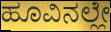
ಹೂವಿನಲ್ಲೇ